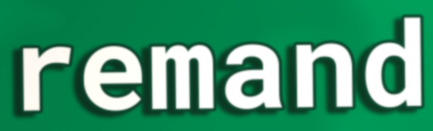
remand